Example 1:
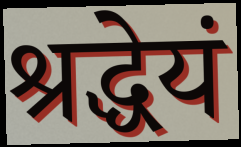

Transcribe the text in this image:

श्रद्धेयं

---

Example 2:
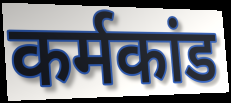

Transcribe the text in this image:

कर्मकांड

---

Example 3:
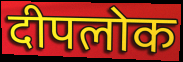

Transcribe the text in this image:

दीपलोक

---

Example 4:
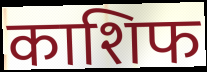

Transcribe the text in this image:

काशिफ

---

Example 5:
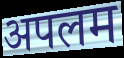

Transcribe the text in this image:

अपलम